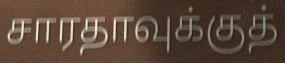
சாரதாவுக்குத்